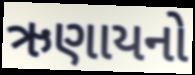
ઋણાયનો